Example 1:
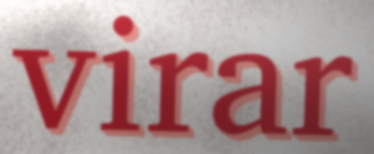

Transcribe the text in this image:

virar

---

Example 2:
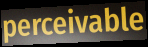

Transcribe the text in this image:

perceivable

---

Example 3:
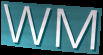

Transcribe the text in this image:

WM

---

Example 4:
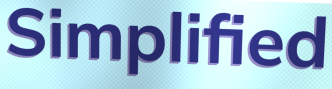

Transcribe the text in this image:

Simplified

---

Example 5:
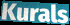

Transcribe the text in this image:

Kurals